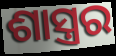
ଶାସ୍ତ୍ରର